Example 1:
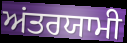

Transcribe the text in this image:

ਅਂਤਰਯਾਮੀ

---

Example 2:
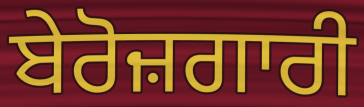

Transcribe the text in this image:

ਬੇਰੋਜ਼ਗਾਰੀ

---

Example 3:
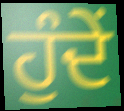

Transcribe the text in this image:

ਹੁੰਦੇਂ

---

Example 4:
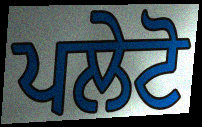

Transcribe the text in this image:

ਪਲੇਟੋ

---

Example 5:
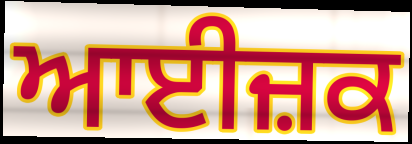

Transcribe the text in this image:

ਆਈਜ਼ਕ